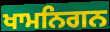
ਖਾਮਨਿਗਨ